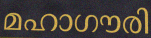
മഹാഗൗരി